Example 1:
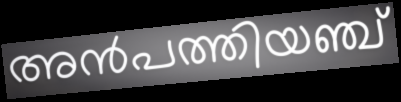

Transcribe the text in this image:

അൻപത്തിയഞ്ച്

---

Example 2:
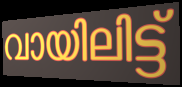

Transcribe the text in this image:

വായിലിട്ട്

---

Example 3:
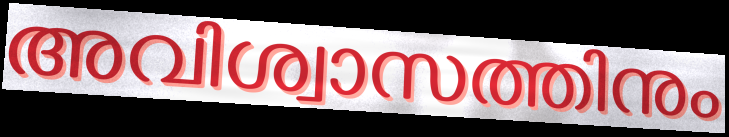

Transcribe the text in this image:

അവിശ്വാസത്തിനും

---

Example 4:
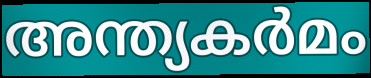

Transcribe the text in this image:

അന്ത്യകർമം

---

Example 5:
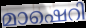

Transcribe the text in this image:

മാഷെറി